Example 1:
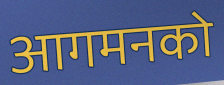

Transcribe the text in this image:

आगमनको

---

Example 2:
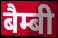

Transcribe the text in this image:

बैम्बी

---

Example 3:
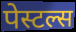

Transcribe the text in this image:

पेस्टल्स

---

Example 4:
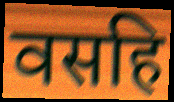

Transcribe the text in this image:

वसहि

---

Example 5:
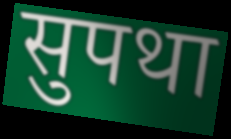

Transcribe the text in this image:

सुपथा